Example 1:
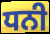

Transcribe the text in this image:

ਧਨੀ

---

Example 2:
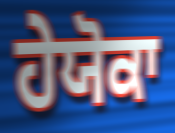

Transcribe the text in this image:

ਹੇਯੋਕਾ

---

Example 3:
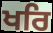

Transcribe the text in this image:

ਖਰਿ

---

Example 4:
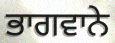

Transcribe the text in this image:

ਭਾਗਵਾਨੇ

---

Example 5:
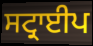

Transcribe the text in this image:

ਸਟ੍ਰਾਈਪ